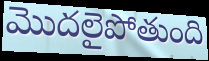
మొదలైపోతుంది